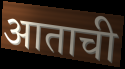
आताची